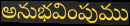
అనుభవింపుము